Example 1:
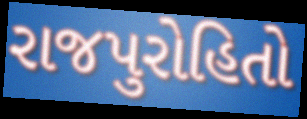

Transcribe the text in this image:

રાજપુરોહિતો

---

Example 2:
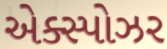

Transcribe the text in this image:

એક્સ્પોઝર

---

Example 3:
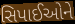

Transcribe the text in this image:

સિપાઈઓને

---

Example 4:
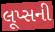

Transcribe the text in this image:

લૂપ્સની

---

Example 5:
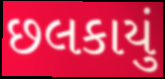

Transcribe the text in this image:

છલકાયું